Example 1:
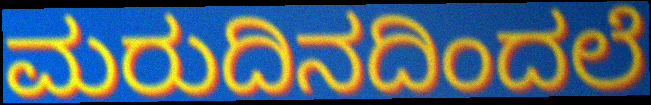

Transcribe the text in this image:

ಮರುದಿನದಿಂದಲೆ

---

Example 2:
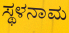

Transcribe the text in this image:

ಸ್ಥಳನಾಮ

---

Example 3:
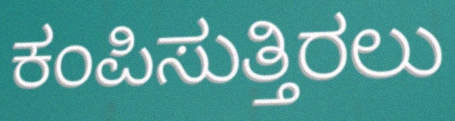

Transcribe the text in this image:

ಕಂಪಿಸುತ್ತಿರಲು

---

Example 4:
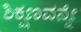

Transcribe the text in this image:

ಶಿಕ್ಷಣವನ್ನೇ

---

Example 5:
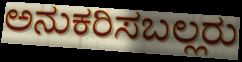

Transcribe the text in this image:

ಅನುಕರಿಸಬಲ್ಲರು